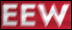
EEW